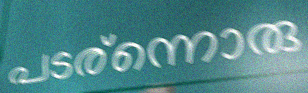
പടര്ന്നൊരു